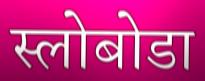
स्लोबोडा